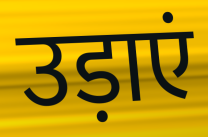
उड़ाएं